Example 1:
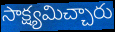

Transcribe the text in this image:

సాక్ష్యమిచ్చారు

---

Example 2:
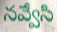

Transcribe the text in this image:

నవ్వేసి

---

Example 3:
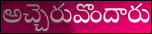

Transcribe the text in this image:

అచ్చెరువొందారు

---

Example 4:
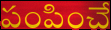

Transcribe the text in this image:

పంపించే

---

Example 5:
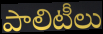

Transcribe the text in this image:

పాలిటీలు